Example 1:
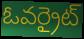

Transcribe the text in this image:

ఓవర్రైట్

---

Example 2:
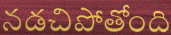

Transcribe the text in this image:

నడచిపోతోంది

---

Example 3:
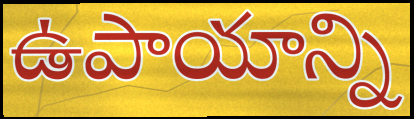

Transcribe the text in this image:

ఉపాయాన్ని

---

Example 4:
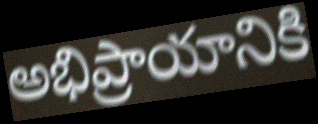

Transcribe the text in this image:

అభిప్రాయానికి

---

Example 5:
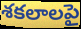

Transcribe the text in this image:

శకలాలపై